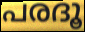
പരദൂ